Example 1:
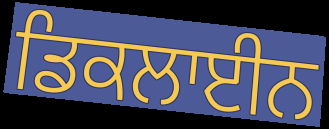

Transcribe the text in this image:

ਡਿਕਲਾਈਨ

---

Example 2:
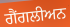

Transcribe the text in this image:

ਗੈਂਗਲੀਅਨ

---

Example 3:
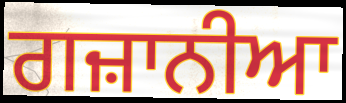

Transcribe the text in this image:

ਗਜ਼ਾਨੀਆ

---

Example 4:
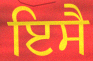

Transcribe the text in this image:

ਇਸੈ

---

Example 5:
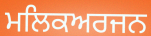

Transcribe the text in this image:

ਮਲਿਕਅਰਜਨ